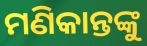
ମଣିକାନ୍ତଙ୍କୁ